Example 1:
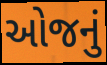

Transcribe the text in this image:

ઓજનું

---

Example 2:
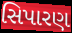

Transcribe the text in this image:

સિપારણ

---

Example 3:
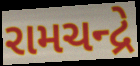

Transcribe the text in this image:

રામચન્દ્રે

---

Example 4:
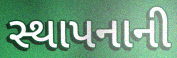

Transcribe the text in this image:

સ્થાપનાની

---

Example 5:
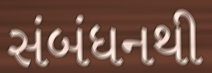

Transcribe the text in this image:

સંબંધનથી